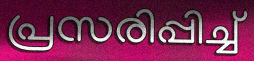
പ്രസരിപ്പിച്ച്